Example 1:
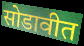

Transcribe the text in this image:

सोडावीत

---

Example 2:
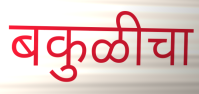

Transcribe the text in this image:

बकुळीचा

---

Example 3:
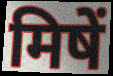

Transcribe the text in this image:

मिषें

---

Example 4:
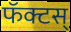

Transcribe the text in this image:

फॅक्टस्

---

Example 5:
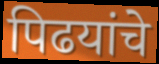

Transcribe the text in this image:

पिढयांचे